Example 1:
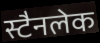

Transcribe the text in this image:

स्टैनलेक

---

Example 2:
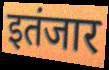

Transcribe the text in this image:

इतंजार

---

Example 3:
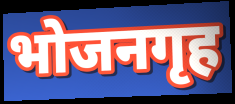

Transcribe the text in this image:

भोजनगृह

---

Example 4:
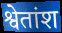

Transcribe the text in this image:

श्वेतांश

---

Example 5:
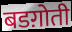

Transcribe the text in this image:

बडग़ोती